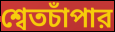
শ্বেতচাঁপার